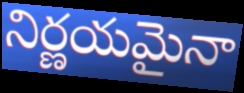
నిర్ణయమైనా